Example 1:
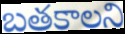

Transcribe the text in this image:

బతకాలని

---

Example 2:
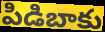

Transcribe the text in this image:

పిడిబాకు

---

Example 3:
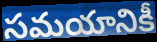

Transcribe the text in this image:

సమయానికీ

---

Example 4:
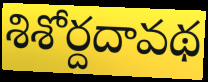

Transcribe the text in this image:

శిశోర్దదావథ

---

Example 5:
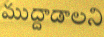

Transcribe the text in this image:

ముద్దాడాలని